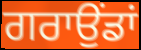
ਗਰਾਉਂਡਾਂ